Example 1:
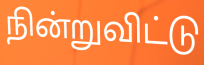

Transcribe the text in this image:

நின்றுவிட்டு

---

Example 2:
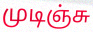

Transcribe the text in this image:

முடிஞ்சு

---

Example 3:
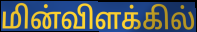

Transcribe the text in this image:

மின்விளக்கில்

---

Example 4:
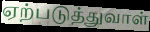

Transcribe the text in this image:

ஏற்படுத்துவாள்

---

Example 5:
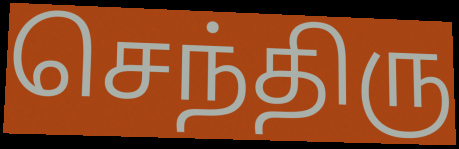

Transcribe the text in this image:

செந்திரு